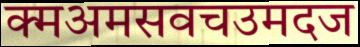
क्मअमसवचउमदज